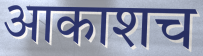
आकाशच